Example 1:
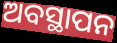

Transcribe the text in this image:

ଅବସ୍ଥାପନ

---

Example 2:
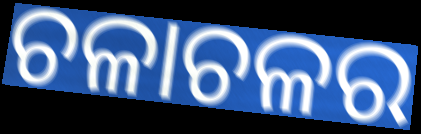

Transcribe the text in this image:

ଚଳାଚଳର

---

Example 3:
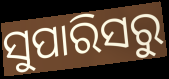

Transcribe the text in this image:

ସୁପାରିସରୁ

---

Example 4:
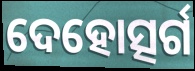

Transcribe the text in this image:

ଦେହୋତ୍ସର୍ଗ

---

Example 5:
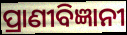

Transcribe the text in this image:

ପ୍ରାଣୀବିଜ୍ଞାନୀ